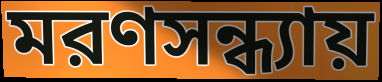
মরণসন্ধ্যায়